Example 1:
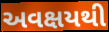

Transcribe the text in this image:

અવક્ષયથી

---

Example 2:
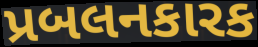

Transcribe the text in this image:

પ્રબલનકારક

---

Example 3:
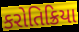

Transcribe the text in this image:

કરોતિક્રિયા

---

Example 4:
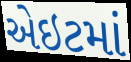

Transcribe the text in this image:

એઇટમાં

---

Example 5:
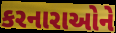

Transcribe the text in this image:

કરનારાઓને